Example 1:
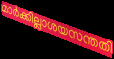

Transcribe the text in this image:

മാർക്കില്ലാശയസന്തതി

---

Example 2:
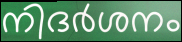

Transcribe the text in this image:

നിദർശനം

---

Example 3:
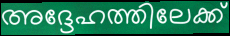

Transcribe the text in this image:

അദ്ദേഹത്തിലേക്ക്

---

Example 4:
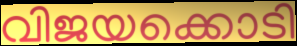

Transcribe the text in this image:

വിജയക്കൊടി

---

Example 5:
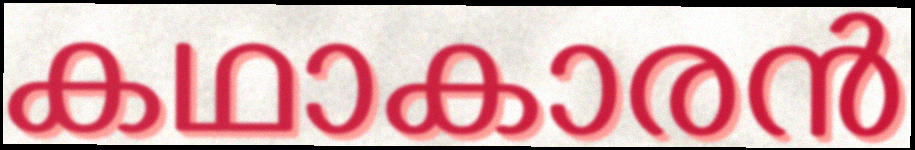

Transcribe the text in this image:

കഥാകാരൻ